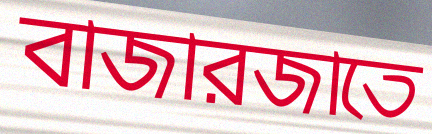
বাজারজাতে